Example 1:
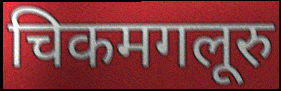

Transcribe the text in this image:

चिकमगलूरु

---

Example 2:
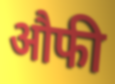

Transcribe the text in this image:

औफी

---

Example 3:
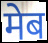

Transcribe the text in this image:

मेब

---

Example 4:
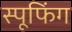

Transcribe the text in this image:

स्पूफिंग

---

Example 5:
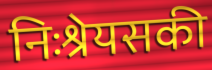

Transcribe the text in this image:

निःश्रेयसकी